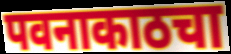
पवनाकाठचा